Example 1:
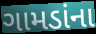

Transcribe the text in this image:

ગામડાંના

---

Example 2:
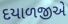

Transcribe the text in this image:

દયાળજીએ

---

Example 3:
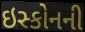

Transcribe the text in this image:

ઇસ્કોનની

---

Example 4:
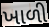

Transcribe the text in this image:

ખાળી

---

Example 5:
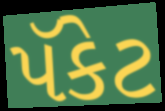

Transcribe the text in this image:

પૅકેટ